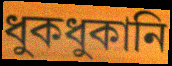
ধুকধুকানি